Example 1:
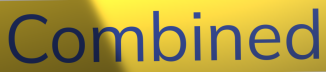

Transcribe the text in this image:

Combined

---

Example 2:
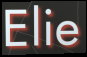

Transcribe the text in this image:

Elie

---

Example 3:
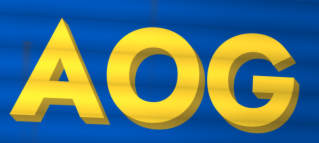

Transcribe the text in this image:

AOG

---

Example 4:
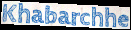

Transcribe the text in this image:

Khabarchhe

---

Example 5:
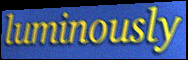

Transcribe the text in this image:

luminously